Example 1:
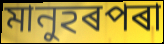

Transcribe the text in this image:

মানুহৰপৰা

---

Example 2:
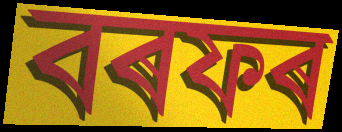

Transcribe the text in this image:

বৰফৰ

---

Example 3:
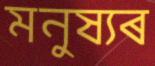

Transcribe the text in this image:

মনুষ্যৰ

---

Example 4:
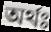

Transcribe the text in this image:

অৰ্থঃ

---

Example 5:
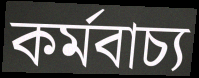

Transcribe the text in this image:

কৰ্মবাচ্য